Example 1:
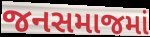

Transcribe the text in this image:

જનસમાજમાં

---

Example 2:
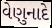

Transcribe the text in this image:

વેણુનાદે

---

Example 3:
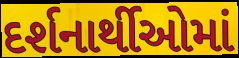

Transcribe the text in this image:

દર્શનાર્થીઓમાં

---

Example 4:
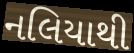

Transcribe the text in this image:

નલિયાથી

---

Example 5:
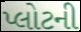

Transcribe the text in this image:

પ્લોટની